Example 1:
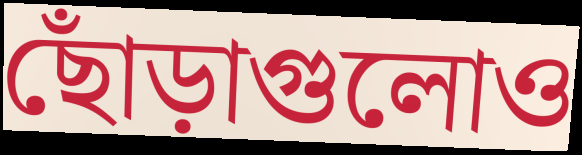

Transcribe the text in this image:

ছোঁড়াগুলোও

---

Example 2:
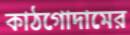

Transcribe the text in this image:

কাঠগোদামের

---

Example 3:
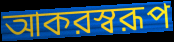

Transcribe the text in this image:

আকরস্বরূপ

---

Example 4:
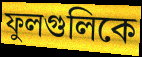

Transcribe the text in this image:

ফুলগুলিকে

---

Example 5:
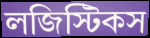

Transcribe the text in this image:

লজিস্টিকস